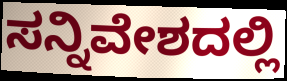
ಸನ್ನಿವೇಶದಲ್ಲಿ